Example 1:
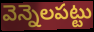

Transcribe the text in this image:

వెన్నెలపట్టు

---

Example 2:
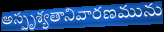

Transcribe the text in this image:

అస్పృశ్యతానివారణమును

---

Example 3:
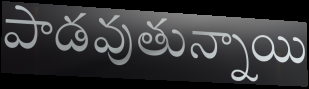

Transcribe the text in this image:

పాడవుతున్నాయి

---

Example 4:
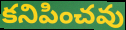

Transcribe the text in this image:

కనిపించవు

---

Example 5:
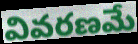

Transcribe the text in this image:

వివరణమే